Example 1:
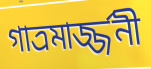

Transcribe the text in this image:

গাত্রমার্জ্জনী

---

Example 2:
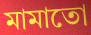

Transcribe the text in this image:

মামাতো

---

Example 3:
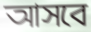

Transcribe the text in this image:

আসবে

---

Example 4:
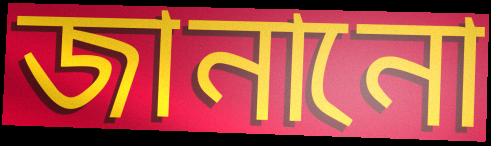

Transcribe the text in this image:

জানানো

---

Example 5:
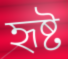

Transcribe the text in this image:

হৃষ্ট